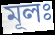
মূলঃ